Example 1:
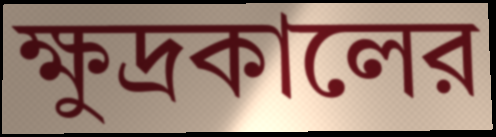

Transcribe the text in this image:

ক্ষুদ্রকালের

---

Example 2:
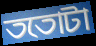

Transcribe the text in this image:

ততোটা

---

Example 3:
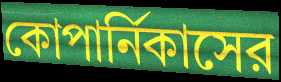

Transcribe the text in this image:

কোপার্নিকাসের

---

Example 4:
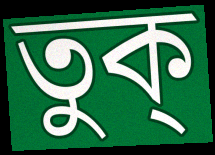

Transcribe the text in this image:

তুক্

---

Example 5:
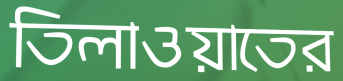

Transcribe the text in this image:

তিলাওয়াতের